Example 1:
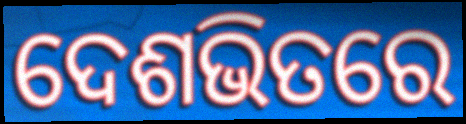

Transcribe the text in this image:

ଦେଶଭିତରେ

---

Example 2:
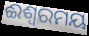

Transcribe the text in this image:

ଈଶ୍ଵରମୟ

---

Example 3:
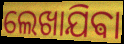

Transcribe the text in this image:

ଲେଖାଯିଵା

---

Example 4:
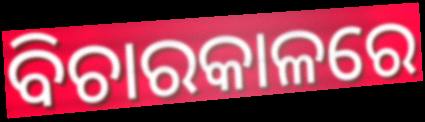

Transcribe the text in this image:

ବିଚାରକାଳରେ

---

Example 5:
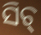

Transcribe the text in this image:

ସିଚ୍